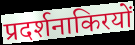
प्रदर्शनाकिरयों